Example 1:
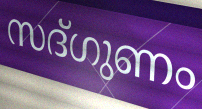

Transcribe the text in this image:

സദ്ഗുണം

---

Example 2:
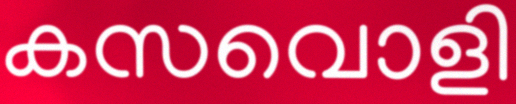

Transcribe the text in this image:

കസവൊളി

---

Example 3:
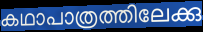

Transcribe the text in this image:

കഥാപാത്രത്തിലേക്കു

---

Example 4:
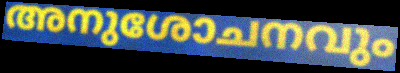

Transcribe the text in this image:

അനുശോചനവും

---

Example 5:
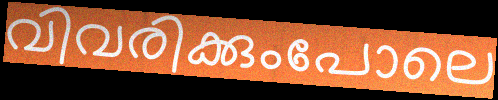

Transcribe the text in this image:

വിവരിക്കുംപോലെ